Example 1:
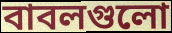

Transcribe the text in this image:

বাবলগুলো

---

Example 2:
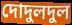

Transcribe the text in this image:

দোদুলদুল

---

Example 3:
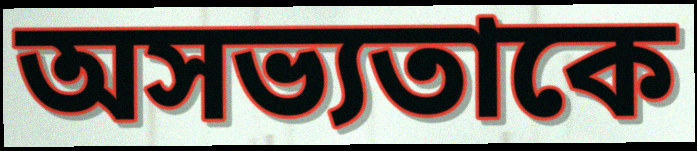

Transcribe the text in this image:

অসভ্যতাকে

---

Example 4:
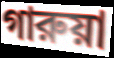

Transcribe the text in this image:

গারুয়া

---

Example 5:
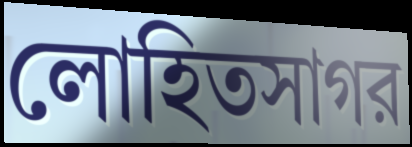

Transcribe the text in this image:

লোহিতসাগর